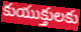
కుయుక్తులకు